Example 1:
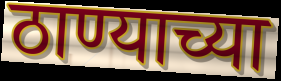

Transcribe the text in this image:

ठाण्याच्या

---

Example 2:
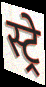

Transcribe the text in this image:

स्ट्रे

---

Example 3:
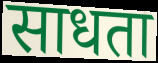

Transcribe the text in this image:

साधता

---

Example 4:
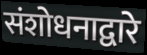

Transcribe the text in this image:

संशोधनाद्वारे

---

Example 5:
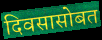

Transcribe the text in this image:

दिवसासोबत